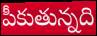
పీకుతున్నది